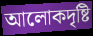
আলোকদৃষ্টি